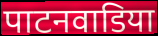
पाटनवाडिया